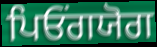
ਪਿਓਂਗਯੋਗ